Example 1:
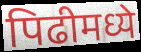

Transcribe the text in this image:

पिढीमध्ये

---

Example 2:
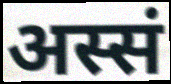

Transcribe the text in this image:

अस्सं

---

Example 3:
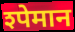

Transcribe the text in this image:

श्पेमान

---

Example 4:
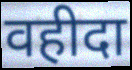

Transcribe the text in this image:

वहीदा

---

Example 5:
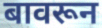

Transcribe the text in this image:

बावरून